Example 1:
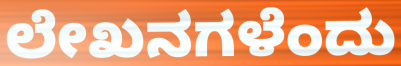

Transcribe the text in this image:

ಲೇಖನಗಳೆಂದು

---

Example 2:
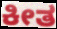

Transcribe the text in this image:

ಕೀತ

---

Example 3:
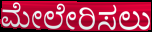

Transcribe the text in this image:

ಮೇಲೇರಿಸಲು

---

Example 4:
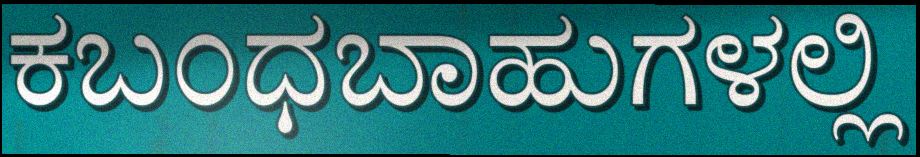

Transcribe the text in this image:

ಕಬಂಧಬಾಹುಗಳಲ್ಲಿ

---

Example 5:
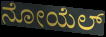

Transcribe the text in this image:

ನೋಯೆಲ್